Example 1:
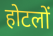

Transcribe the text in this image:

होटलों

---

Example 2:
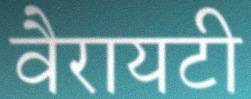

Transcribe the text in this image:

वैरायटी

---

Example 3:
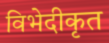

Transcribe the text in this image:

विभेदीकृत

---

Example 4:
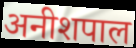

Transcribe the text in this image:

अनीशपाल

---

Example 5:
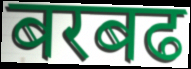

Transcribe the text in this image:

बरबढ